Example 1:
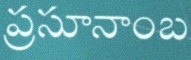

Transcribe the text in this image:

ప్రసూనాంబ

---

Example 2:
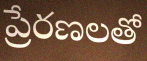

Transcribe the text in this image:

ప్రేరణలతో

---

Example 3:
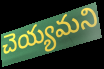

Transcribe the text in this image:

చెయ్యమని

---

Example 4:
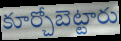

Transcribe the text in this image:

కూర్చోబెట్టారు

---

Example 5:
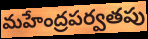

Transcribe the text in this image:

మహేంద్రపర్వతపు